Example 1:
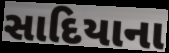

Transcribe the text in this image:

સાદિયાના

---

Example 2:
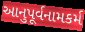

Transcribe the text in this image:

આનુપૂર્વનામકર્મ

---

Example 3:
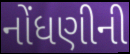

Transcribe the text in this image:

નોંધણીની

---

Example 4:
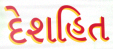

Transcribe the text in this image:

દેશહિત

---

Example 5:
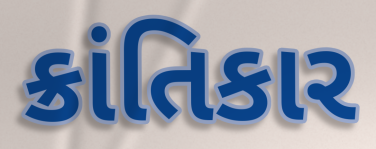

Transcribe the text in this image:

ક્રાંતિકાર